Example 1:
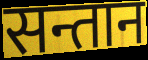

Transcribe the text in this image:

सन्तान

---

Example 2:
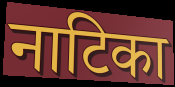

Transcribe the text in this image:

नाटिका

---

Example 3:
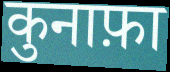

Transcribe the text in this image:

कुनाफ़ा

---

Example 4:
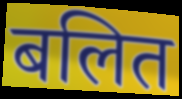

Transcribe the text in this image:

बलित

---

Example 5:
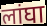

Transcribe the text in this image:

लांघा